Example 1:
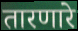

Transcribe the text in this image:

तारणारे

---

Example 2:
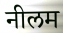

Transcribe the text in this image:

नीलम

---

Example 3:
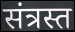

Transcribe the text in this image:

संत्रस्त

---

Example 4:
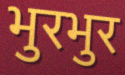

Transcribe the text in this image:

भुरभुर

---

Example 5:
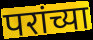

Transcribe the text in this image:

परांच्या